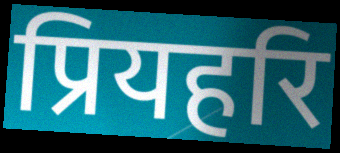
प्रियहरि